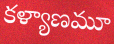
కళ్యాణమూ